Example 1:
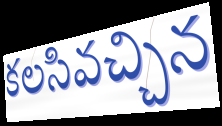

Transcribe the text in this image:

కలసివచ్చిన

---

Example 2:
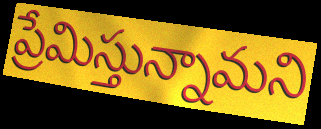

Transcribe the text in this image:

ప్రేమిస్తున్నామని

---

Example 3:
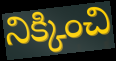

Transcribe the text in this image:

నిక్కించి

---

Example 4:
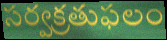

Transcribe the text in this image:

సర్వక్రతుఫలం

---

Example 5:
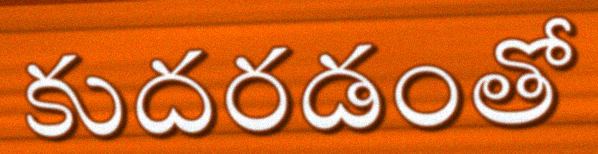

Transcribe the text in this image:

కుదరడంతో